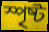
স্পৃষ্ট